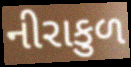
નીરાકુળ